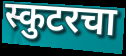
स्कुटरचा